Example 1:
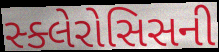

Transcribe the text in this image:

સ્ક્લેરોસિસની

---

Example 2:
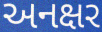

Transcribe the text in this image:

અનક્ષર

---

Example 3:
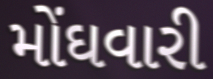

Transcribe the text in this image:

મોંઘવારી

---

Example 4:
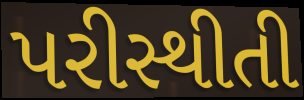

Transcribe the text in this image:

પરીસ્થીતી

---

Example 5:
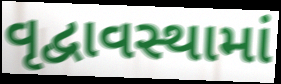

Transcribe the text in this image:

વૃદ્વાવસ્થામાં